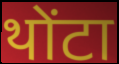
थोंटा